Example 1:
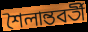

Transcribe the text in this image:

শৈলান্তবর্তী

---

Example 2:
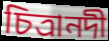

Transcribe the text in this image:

চিত্রানদী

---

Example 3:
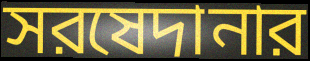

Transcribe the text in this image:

সরষেদানার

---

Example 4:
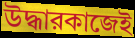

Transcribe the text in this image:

উদ্ধারকাজেই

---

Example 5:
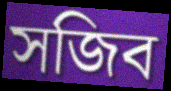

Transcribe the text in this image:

সজিব